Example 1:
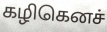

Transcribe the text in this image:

கழிகெனச்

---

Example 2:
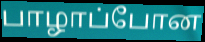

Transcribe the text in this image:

பாழாப்போன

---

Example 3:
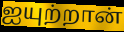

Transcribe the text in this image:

ஐயுற்றான்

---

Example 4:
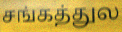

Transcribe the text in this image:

சங்கத்துல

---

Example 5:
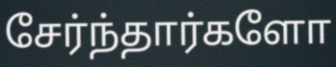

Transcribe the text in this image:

சேர்ந்தார்களோ